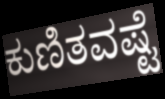
ಕುಣಿತವಷ್ಟೆ